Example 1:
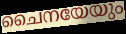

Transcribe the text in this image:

ചൈനയേയും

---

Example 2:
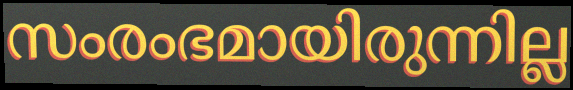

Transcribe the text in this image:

സംരംഭമായിരുന്നില്ല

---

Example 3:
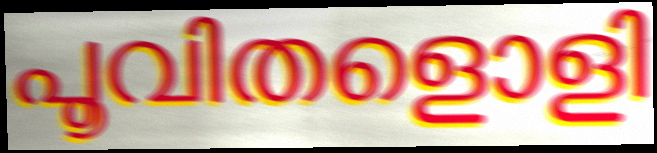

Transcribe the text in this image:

പൂവിതളൊളി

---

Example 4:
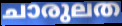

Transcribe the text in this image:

ചാരുലത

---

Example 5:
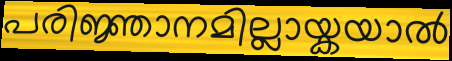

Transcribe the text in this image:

പരിജ്ഞാനമില്ലായ്കയാൽ